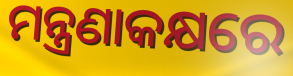
ମନ୍ତ୍ରଣାକକ୍ଷରେ